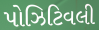
પોઝિટિવલી